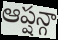
ఆప్షన్గా